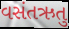
વસંતઋતુ